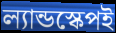
ল্যান্ডস্কেপই